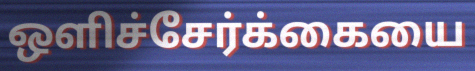
ஒளிச்சேர்க்கையை